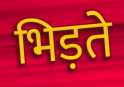
भिड़ते